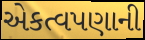
એકત્વપણાની